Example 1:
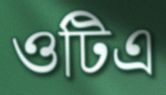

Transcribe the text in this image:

ওটিএ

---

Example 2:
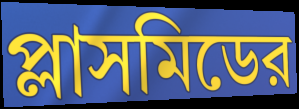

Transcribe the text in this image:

প্লাসমিডের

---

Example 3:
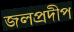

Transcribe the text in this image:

জলপ্রদীপ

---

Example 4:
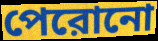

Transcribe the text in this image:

পেরোনো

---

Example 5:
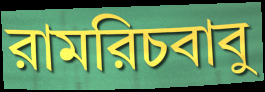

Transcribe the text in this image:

রামরিচবাবু